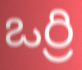
ఒర్రి